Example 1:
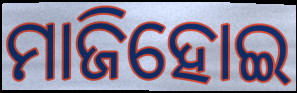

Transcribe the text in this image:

ମାଜିହୋଇ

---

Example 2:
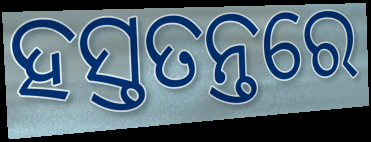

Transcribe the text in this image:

ହସ୍ତତନ୍ତରେ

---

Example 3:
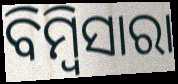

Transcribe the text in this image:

ବିମ୍ବିସାରା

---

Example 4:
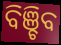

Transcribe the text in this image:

ବିଞ୍ଚିବ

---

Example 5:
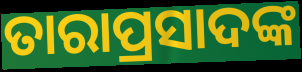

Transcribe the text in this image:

ତାରାପ୍ରସାଦଙ୍କ